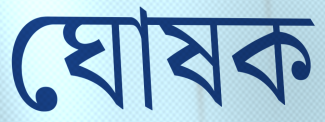
ঘোষক